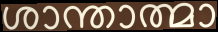
ശാന്താത്മാ